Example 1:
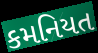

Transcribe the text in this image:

કમનિયત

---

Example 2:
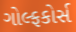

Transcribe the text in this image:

ગોલ્ફકોર્સ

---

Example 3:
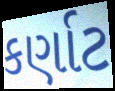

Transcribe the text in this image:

કર્ણાટ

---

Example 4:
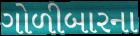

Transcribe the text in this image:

ગોળીબારના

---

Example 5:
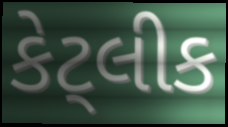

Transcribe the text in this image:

કેટ્લીક